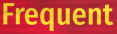
Frequent